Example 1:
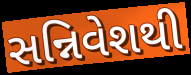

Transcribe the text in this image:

સન્નિવેશથી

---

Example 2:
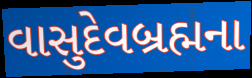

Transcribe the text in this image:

વાસુદેવબ્રહ્મના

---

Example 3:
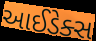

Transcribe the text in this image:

આઈડેક્સ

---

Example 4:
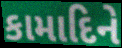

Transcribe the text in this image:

કામાદિને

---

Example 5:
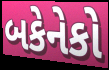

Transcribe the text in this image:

બકેનેકો